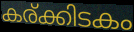
കര്ക്കിടകം